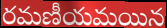
రమణీయమయిన